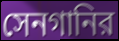
সেনগানির